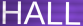
HALL